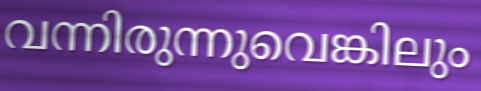
വന്നിരുന്നുവെങ്കിലും